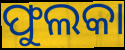
ଫୁଲକା